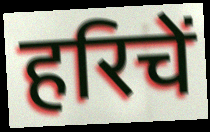
हरिचें